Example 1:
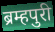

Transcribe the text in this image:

ब्रम्हपुरी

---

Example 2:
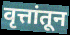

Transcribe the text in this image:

वृत्तांतून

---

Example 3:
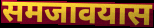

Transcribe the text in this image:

समजावयास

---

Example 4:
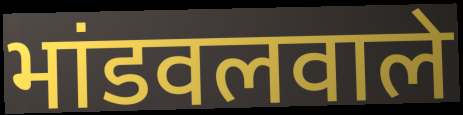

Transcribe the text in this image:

भांडवलवाले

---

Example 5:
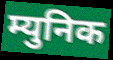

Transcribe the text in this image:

म्युनिक